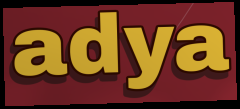
adya